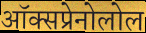
ऑक्सप्रेनोलोल